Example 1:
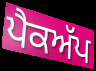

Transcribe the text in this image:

ਪੈਕਅੱਪ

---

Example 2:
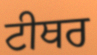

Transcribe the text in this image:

ਟੀਥਰ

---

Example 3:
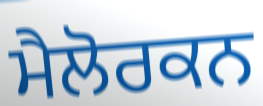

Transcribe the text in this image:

ਮੈਲੋਰਕਨ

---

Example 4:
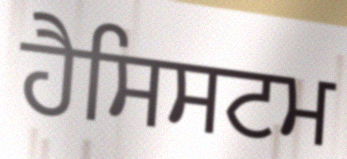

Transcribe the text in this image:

ਹੈਸਿਸਟਮ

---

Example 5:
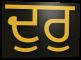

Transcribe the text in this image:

ਦੁਰੁ